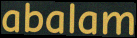
abalam